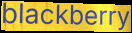
blackberry